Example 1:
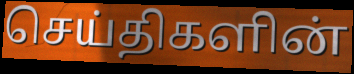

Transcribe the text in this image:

செய்திகளின்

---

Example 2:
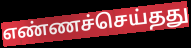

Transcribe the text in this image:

எண்ணச்செய்தது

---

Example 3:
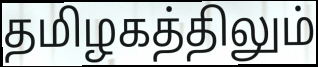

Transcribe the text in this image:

தமிழகத்திலும்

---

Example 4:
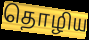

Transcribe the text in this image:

தொழிய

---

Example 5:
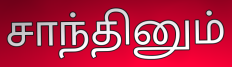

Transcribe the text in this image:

சாந்தினும்